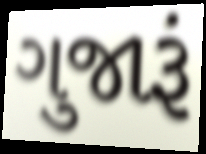
ગુજારૂં